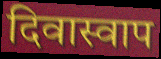
दिवास्वाप